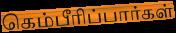
கெம்பீரிப்பார்கள்